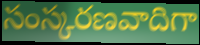
సంస్కరణవాదిగా